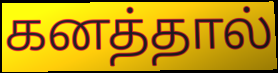
கனத்தால்